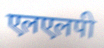
एलएलपी